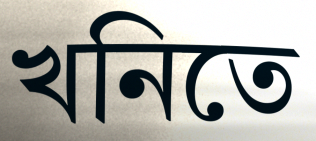
খনিতে